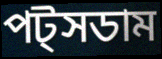
পট্‌সডাম